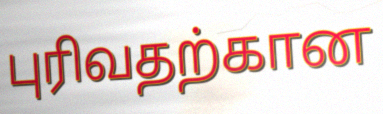
புரிவதற்கான